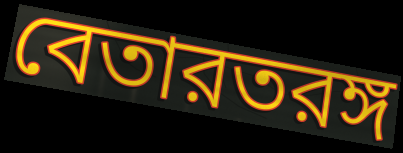
বেতারতরঙ্গ